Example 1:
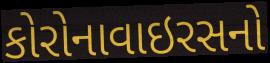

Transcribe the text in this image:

કોરોનાવાઇરસનો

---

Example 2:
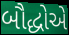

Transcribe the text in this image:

બૌદ્ધોએ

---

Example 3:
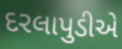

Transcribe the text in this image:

દરલાપુડીએ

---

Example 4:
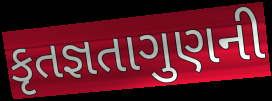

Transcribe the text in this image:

કૃતજ્ઞતાગુણની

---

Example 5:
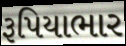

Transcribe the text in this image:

રૂપિયાભાર